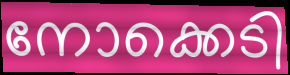
നോക്കെടി